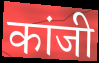
कांजी